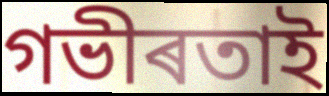
গভীৰতাই